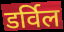
डर्विल